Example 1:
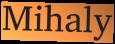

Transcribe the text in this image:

Mihaly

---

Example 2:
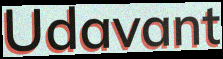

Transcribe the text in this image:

Udavant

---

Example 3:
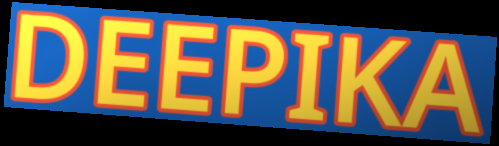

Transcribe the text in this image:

DEEPIKA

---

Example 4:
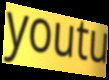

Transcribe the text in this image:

youtu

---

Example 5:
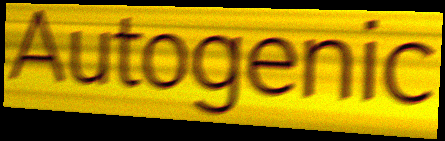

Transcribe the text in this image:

Autogenic